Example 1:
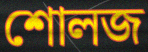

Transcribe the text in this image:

শোলজ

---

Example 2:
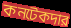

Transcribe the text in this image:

কনটেকদার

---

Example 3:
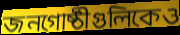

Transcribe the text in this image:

জনগোষ্ঠীগুলিকেও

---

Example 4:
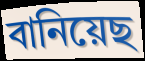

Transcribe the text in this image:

বানিয়েছ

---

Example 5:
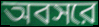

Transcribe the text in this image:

অবসরে